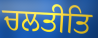
ਚਲਤੀਤਿ